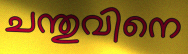
ചന്തുവിനെ